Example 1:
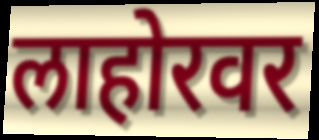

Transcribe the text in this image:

लाहोरवर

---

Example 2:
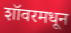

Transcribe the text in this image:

शॉवरमधून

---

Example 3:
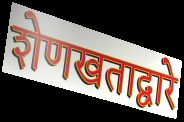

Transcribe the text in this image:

शेणखताद्वारे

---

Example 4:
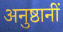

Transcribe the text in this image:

अनुष्ठानीं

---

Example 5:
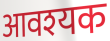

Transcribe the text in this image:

आवश्‍यक